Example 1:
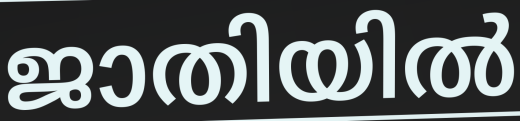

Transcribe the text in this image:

ജാതിയിൽ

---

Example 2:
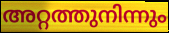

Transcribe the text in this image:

അറ്റത്തുനിന്നും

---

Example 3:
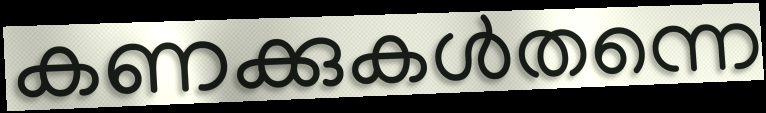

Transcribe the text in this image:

കണക്കുകൾതന്നെ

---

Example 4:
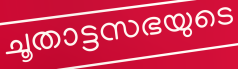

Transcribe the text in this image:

ചൂതാട്ടസഭയുടെ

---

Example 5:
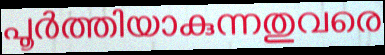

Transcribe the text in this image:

പൂർത്തിയാകുന്നതുവരെ